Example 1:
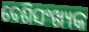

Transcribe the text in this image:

ବେଶିସଂଖ୍ୟକ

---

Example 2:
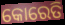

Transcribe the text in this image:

କୋରେତି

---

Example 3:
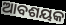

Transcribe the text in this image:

ଆବଶୟକ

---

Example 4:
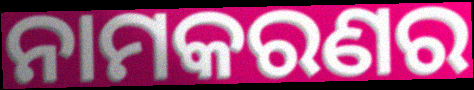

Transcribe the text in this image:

ନାମକରଣର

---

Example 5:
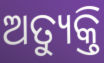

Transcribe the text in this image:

ଅତ୍ୟୁକ୍ତି